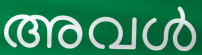
അവൾ